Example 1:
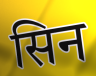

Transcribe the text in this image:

सिन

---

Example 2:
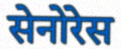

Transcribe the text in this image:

सेनोरेस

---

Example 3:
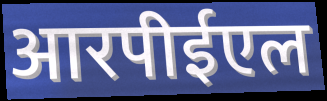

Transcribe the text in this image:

आरपीईएल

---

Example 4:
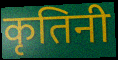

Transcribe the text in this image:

कृतिनी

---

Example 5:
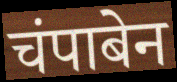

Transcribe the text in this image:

चंपाबेन